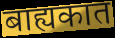
बाह्यकात